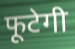
फूटेगी